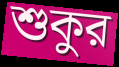
শুকুর